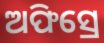
ଅଫିସ୍ରେ